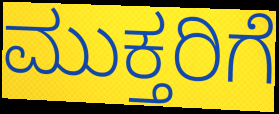
ಮುಕ್ತರಿಗೆ